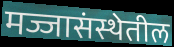
मज्जासंस्थेतील